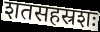
शतसहस्रशः